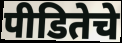
पीडितेचे